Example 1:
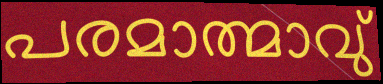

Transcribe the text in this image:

പരമാത്മാവു്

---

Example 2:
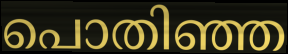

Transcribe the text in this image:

പൊതിഞ്ഞ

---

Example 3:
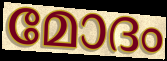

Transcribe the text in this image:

മോദം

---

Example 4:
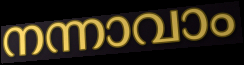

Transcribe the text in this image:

നന്നാവാം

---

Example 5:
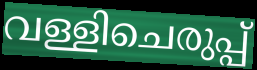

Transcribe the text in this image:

വള്ളിചെരുപ്പ്